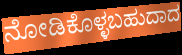
ನೋಡಿಕೊಳ್ಳಬಹುದಾದ